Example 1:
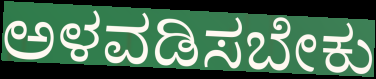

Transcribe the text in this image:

ಅಳವಡಿಸಬೇಕು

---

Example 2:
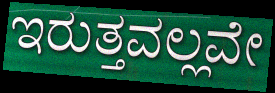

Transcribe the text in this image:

ಇರುತ್ತವಲ್ಲವೇ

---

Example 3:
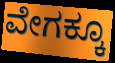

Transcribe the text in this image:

ವೇಗಕ್ಕೂ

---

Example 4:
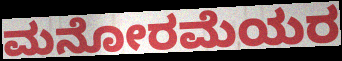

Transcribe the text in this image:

ಮನೋರಮೆಯರ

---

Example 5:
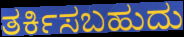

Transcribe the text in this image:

ತರ್ಕಿಸಬಹುದು